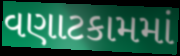
વણાટકામમાં